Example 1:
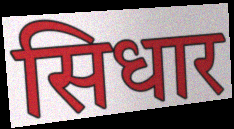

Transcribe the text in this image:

सिधार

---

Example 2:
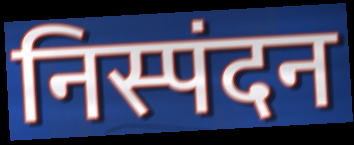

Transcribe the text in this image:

निस्पंदन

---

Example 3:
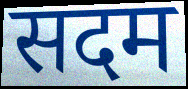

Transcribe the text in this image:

सदम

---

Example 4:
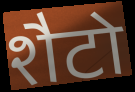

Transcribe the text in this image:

शैटो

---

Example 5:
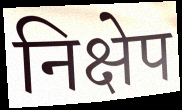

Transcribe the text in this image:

निक्षेप